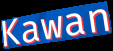
Kawan